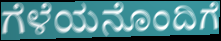
ಗೆಳೆಯನೊಂದಿಗೆ